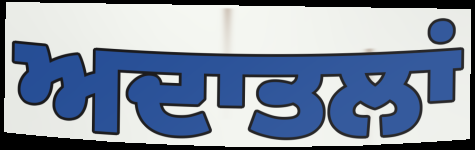
ਅਦਾਤਲਾਂ